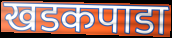
खडकपाडा